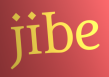
jibe